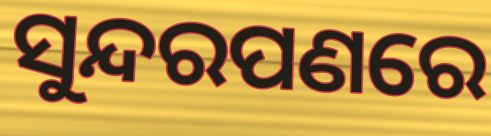
ସୁନ୍ଦରପଣରେ